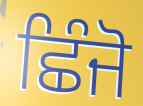
ਛਿੰਜੋ